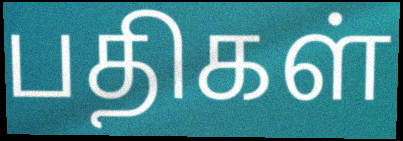
பதிகள்